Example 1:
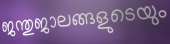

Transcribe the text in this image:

ജന്തുജാലങ്ങളുടെയും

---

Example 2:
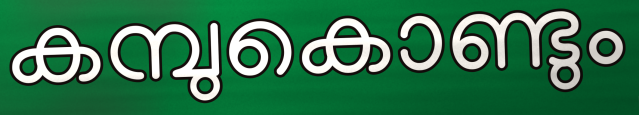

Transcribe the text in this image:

കമ്പുകൊണ്ടും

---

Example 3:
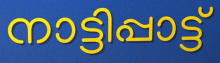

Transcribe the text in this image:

നാട്ടിപ്പാട്ട്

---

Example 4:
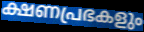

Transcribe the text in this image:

ക്ഷണപ്രഭകളും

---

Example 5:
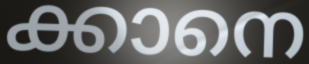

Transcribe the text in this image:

ക്കാനെ